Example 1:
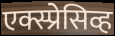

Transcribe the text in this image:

एक्स्प्रेसिव्ह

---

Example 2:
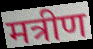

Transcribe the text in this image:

मत्रीण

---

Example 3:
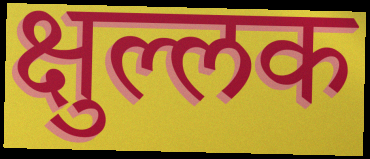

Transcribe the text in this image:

क्षुल्लक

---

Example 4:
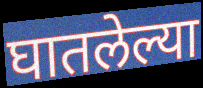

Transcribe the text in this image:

घातलेल्या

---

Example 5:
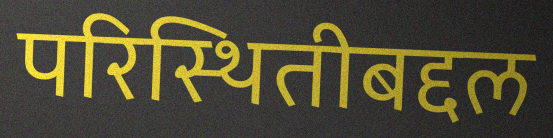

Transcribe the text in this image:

परिस्थितीबद्दल